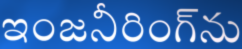
ఇంజనీరింగ్‌ను